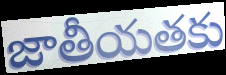
జాతీయతకు